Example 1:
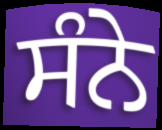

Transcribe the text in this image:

ਸੰਨੇ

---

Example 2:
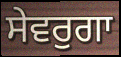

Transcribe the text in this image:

ਸੇਵਰੁਗਾ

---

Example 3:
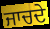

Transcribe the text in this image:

ਜਾਚਦੇ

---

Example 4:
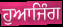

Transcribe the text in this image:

ਹੁਆਜਿੰਗ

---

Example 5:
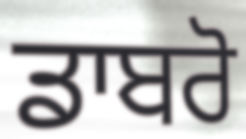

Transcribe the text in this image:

ਡਾਬਰੋ